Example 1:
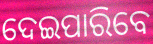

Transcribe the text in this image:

ଦେଇପାରିବେ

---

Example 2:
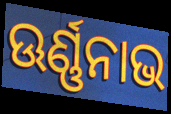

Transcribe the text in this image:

ଊର୍ଣ୍ଣନାଭ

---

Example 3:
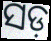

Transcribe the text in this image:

ସଡ଼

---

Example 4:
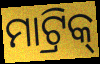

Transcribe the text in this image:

ମାଟ୍ରିକ୍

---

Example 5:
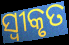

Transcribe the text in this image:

ସ୍ବୀକୃତ